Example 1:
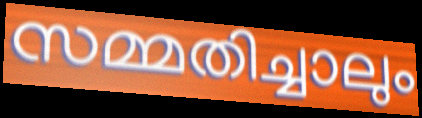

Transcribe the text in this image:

സമ്മതിച്ചാലും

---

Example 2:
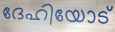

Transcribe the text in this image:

ദേഹിയോട്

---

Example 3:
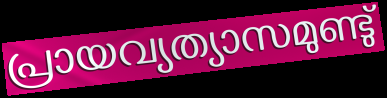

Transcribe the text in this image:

പ്രായവ്യത്യാസമുണ്ടു്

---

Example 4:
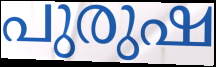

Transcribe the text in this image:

പുരുഷ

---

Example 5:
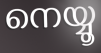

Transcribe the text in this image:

നെയ്യൂ